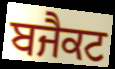
ਬਜੈਕਟ